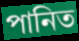
পানিত